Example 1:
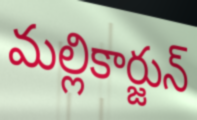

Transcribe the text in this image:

మల్లికార్జున్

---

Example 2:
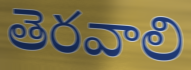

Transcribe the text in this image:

తెరవాలి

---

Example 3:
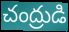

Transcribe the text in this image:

చంద్రుడి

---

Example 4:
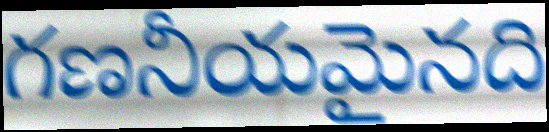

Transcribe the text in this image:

గణనీయమైనది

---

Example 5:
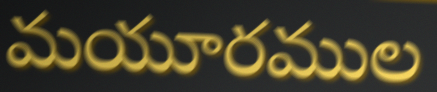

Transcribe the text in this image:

మయూరముల